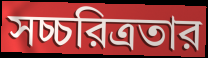
সচ্চরিত্রতার